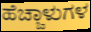
ಹೆಚ್ಚಾಳುಗಳ